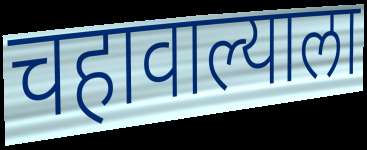
चहावाल्याला